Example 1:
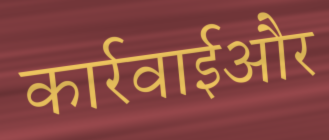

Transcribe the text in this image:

कार्रवाईऔर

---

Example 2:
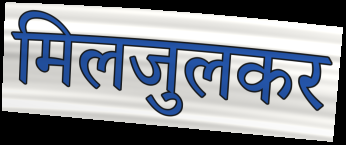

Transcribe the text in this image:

मिलजुलकर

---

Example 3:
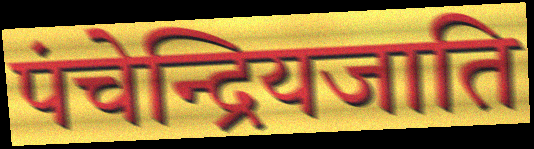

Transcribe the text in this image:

पंचेन्द्रियजाति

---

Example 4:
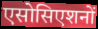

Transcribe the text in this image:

एसोसिएशनों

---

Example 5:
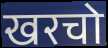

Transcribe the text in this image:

खरचो